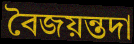
বৈজয়ন্তদা